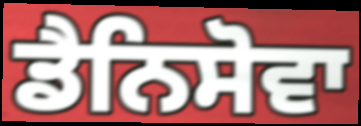
ਡੈਨਿਸੋਵਾ